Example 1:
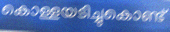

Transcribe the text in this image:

കൊള്ളയടിച്ചുകൊണ്ട്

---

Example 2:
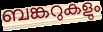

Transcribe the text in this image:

ബങ്കറുകളും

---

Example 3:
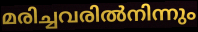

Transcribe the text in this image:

മരിച്ചവരിൽനിന്നും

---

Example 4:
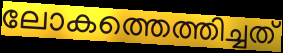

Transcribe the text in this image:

ലോകത്തെത്തിച്ചത്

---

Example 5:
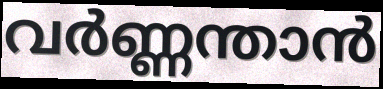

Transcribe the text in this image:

വർണ്ണന്താൻ